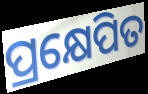
ପ୍ରକ୍ଷେପିତ